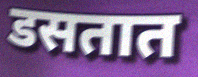
डसतात